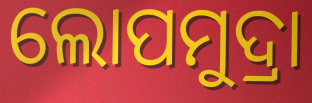
ଲୋପମୁଦ୍ରା